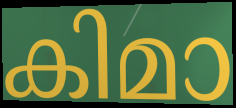
കിമാ